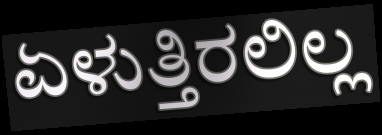
ಏಳುತ್ತಿರಲಿಲ್ಲ